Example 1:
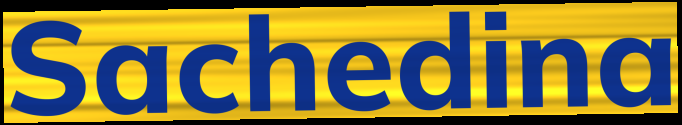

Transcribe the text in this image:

Sachedina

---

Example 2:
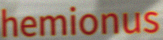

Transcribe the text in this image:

hemionus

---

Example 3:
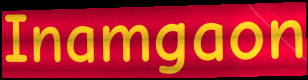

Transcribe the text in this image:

Inamgaon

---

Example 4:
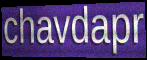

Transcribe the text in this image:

chavdapr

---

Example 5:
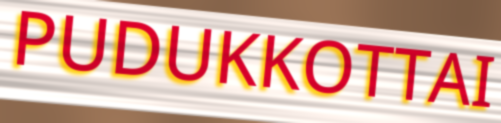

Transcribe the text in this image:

PUDUKKOTTAI